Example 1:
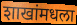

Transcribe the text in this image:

शाखांमधला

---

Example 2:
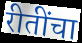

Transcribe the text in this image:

रीतींचा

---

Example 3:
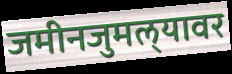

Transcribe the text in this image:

जमीनजुमल्यावर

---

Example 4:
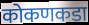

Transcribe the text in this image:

कोकणकडा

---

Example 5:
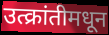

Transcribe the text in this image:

उत्क्रांतीमधून